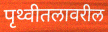
पृथ्वीतलावरील